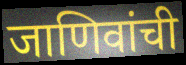
जाणिवांची